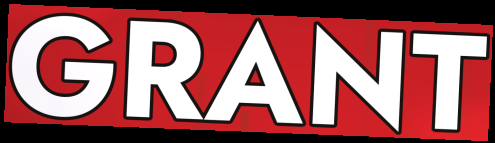
GRANT